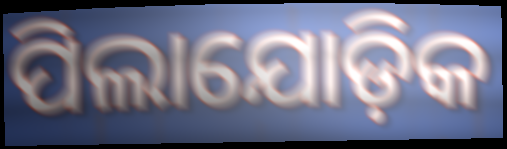
ପିଲାଯୋଡ଼ିକ